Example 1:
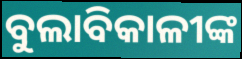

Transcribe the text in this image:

ବୁଲାବିକାଳୀଙ୍କ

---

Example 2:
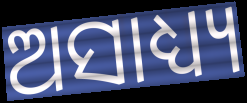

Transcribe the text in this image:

ଅସାଧ୍ୟ୍ୟ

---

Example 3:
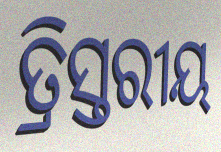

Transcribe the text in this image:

ତ୍ରିସ୍ତରୀୟ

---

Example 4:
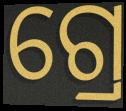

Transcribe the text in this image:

ଗ୍ରେ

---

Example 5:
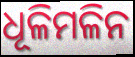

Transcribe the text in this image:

ଧୂଳିମଳିନ